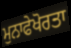
ਮੁਨਾਫੇਖੋਰਤਾ